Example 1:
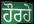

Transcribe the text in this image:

ਹੌਰਹੇ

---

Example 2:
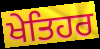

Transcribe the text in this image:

ਖੇਤਿਹਰ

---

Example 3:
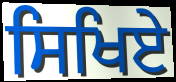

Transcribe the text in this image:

ਸਿਖਿਏ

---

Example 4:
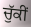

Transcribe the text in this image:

ਚੁੱਕੀਂ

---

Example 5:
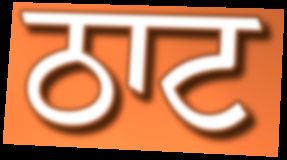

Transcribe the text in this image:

ਠਾਟ